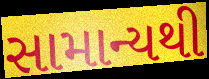
સામાન્યથી